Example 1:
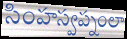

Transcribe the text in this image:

సింహస్వప్నంలా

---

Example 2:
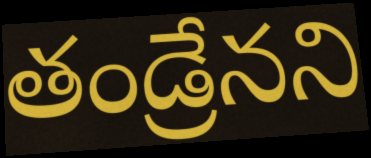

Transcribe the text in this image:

తండ్రేనని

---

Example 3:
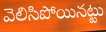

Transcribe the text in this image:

వెలిసిపోయినట్టు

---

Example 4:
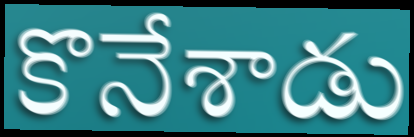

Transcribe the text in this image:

కొనేశాడు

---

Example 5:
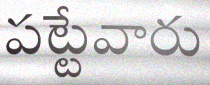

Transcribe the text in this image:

పట్టేవారు